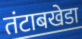
तंटाबखेडा